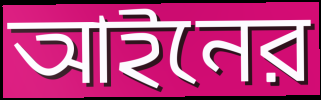
আইনের